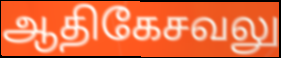
ஆதிகேசவலு